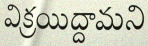
విక్రయిద్దామని